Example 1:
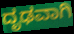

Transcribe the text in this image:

ದೃಢವಾಗಿ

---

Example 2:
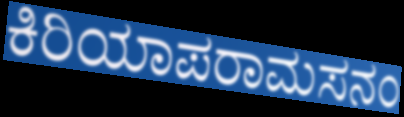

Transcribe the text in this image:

ಕಿರಿಯಾಪರಾಮಸನಂ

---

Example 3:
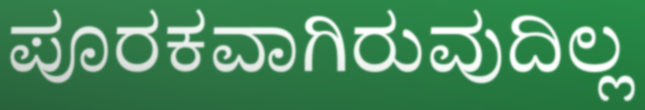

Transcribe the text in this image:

ಪೂರಕವಾಗಿರುವುದಿಲ್ಲ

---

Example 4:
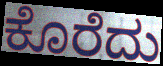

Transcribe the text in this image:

ಕೊರೆದು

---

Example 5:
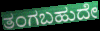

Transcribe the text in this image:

ತಂಗಬಹುದೇ